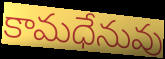
కామధేనువు